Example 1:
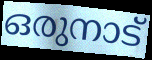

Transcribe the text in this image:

ഒരുനാട്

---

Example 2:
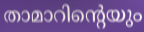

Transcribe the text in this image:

താമാറിന്റെയും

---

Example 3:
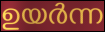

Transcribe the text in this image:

ഉയർന്ന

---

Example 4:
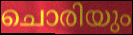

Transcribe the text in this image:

ചൊരിയും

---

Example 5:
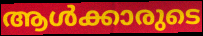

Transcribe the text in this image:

ആൾക്കാരുടെ